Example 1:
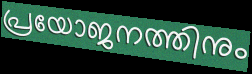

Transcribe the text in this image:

പ്രയോജനത്തിനും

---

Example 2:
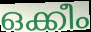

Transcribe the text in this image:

ഒക്കീം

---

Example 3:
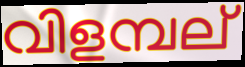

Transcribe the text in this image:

വിളമ്പല്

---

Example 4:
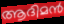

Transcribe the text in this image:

ആദിമൻ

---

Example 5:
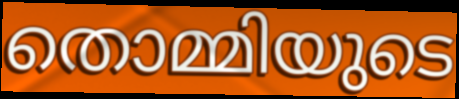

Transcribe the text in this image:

തൊമ്മിയുടെ